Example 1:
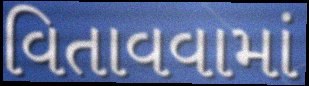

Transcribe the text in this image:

વિતાવવામાં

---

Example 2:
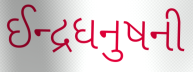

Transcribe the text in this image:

ઈન્દ્રધનુષની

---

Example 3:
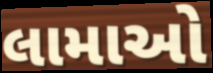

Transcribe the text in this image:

લામાઓ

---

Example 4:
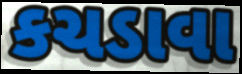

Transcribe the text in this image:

કચડાવા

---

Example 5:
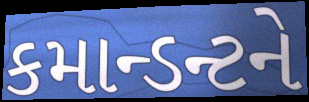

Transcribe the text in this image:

કમાન્ડન્ટને